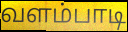
வளம்பாடி